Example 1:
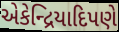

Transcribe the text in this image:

એકેન્દ્રિયાદિપણે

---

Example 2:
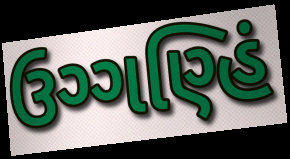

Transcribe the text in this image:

ઉગ્ગણ્હિં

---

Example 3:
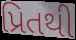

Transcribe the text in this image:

પ્રિતથી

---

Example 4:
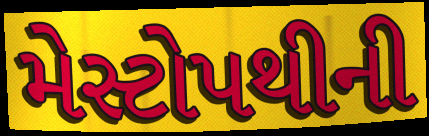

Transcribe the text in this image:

મેસ્ટોપથીની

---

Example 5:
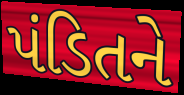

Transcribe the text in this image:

પંડિતને